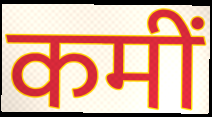
कमीं